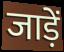
जाड़ें